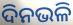
ଦିନଭଳି